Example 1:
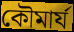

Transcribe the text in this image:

কৌমার্য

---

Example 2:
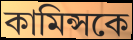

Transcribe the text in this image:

কামিন্সকে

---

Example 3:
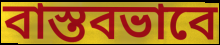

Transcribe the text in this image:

বাস্তবভাবে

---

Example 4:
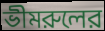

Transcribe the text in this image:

ভীমরুলের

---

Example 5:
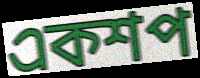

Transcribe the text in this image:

একশপ